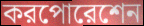
করপোরেশেন